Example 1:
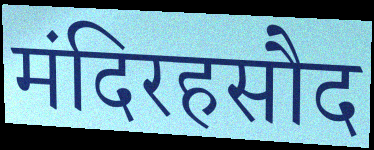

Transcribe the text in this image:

मंदिरहसौद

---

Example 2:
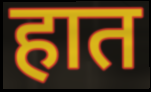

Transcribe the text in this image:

हात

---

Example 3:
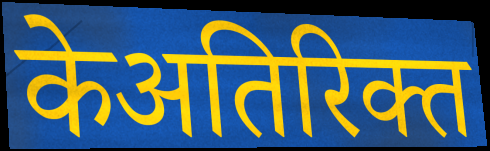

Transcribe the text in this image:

केअतिरिक्त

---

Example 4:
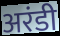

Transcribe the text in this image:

अरंडी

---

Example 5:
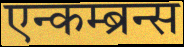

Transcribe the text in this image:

एन्कम्ब्रन्स